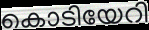
കൊടിയേറി